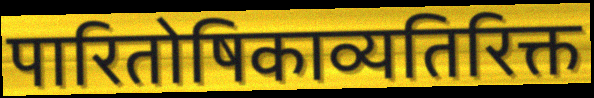
पारितोषिकाव्यतिरिक्त